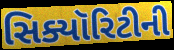
સિક્યૉરિટીની